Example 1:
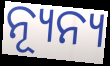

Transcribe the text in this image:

ନ୍ୟୂନ୍ୟ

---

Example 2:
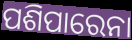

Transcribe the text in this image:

ପଶିପାରେନା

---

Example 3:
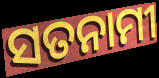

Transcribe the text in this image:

ସତନାମୀ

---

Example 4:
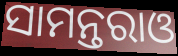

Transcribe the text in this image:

ସାମନ୍ତରାଓ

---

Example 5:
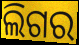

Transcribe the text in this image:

ଲିଗର